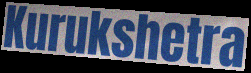
Kurukshetra